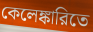
কেলেঙ্কারিতে